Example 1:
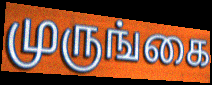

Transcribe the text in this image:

முருங்கை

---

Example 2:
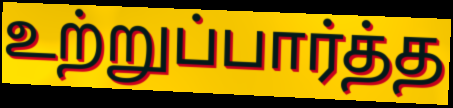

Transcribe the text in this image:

உற்றுப்பார்த்த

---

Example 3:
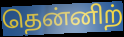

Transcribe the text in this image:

தென்னிற்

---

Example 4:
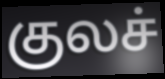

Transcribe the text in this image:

குலச்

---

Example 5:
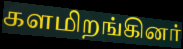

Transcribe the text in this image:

களமிறங்கினர்